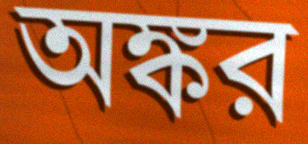
অঙ্কর